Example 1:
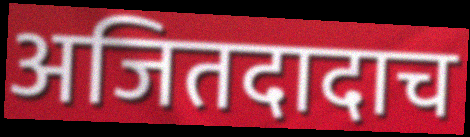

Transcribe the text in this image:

अजितदादाच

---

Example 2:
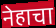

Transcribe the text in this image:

नेहाचा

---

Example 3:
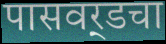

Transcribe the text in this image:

पासवर्डचा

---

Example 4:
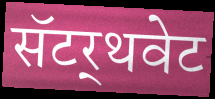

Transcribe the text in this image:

सॅटर्थवेट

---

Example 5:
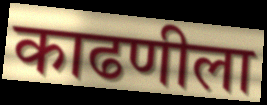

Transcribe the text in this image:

काढणीला